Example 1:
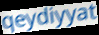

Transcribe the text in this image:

qeydiyyat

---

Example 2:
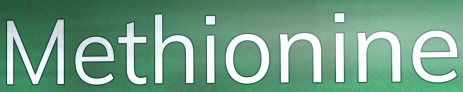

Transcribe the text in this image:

Methionine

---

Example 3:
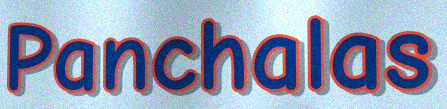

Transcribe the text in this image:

Panchalas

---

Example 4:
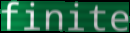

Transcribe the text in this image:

finite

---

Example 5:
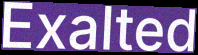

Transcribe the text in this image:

Exalted